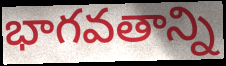
భాగవతాన్ని